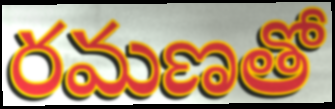
రమణతో